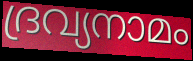
ദ്രവ്യനാമം